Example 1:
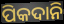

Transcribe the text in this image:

ପିକଦାନି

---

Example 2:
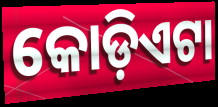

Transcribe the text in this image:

କୋଡ଼ିଏଟା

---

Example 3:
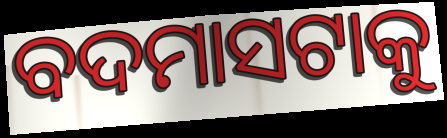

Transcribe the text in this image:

ବଦମାସଟାକୁ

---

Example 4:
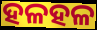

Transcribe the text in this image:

ହଳହଳ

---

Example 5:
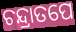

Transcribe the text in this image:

ଚନ୍ଦ୍ରାତପେ